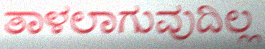
ತಾಳಲಾಗುವುದಿಲ್ಲ